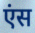
एंस